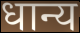
धान्य